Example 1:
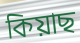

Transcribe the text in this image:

কিয়াছ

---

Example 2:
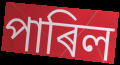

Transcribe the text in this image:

পাৰিল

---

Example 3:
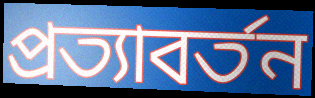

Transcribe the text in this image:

প্ৰত্যাবৰ্তন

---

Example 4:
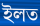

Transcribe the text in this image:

ইলত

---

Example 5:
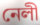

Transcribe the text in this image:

নেলী